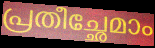
പ്രതീച്ഛേമാം